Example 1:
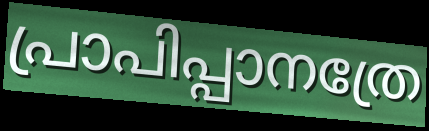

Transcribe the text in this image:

പ്രാപിപ്പാനത്രേ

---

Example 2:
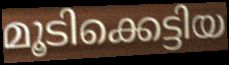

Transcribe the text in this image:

മൂടിക്കെട്ടിയ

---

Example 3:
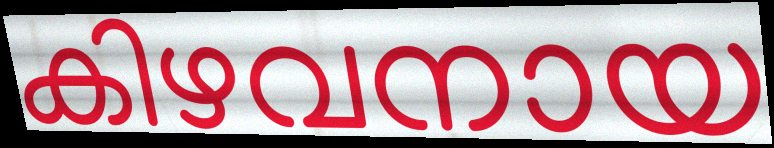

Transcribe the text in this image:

കിഴവനായ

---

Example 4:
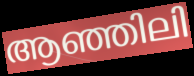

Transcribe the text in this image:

ആഞ്ഞിലി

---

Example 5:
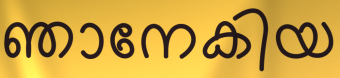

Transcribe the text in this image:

ഞാനേകിയ